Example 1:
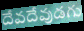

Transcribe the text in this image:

దేవదేవుడగు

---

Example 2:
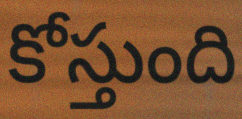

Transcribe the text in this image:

కోస్తుంది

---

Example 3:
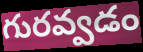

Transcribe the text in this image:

గురవ్వడం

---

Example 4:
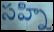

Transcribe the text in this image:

సహ్ని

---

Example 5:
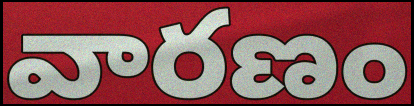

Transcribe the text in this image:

వారణం